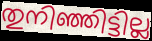
തുനിഞ്ഞിട്ടില്ല